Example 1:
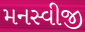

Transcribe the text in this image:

મનસ્વીજી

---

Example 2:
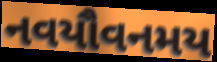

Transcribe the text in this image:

નવયૌવનમય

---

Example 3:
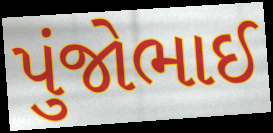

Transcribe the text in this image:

પુંજોભાઈ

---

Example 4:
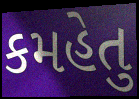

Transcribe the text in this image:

કમહેતુ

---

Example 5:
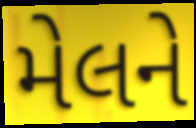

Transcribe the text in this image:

મેલને